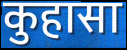
कुहासा